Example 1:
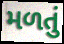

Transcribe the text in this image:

મળતું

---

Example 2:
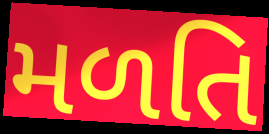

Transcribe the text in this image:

મળતિ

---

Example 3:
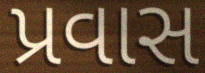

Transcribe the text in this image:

પ્રવાસ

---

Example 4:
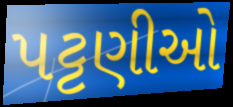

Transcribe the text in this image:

પટ્ટણીઓ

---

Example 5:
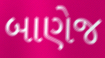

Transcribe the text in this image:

બાણેજ